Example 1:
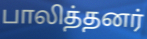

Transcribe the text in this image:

பாலித்தனர்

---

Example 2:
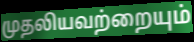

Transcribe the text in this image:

முதலியவற்றையும்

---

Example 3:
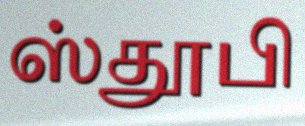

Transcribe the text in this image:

ஸ்தூபி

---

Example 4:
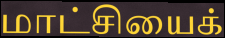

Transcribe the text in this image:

மாட்சியைக்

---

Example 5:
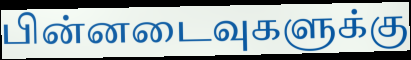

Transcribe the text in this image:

பின்னடைவுகளுக்கு